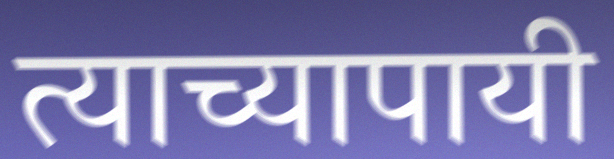
त्याच्यापायी